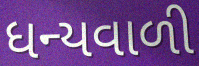
ધન્યવાળી